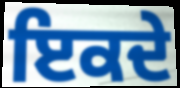
ਇਕਦੇ